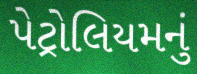
પેટ્રોલિયમનું